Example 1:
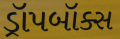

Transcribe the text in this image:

ડ્રૉપબૉક્સ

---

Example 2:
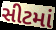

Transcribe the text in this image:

સીટમાં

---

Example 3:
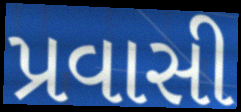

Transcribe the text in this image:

પ્રવાસી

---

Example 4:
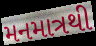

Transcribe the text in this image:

મનમાત્રથી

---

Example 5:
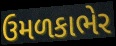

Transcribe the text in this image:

ઉમળકાભેર